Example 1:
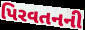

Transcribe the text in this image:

પિરવતનની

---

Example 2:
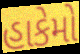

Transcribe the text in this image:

હાકેમો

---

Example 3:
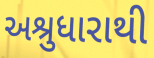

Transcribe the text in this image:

અશ્રુધારાથી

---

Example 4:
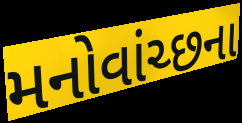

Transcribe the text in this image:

મનોવાંચ્છના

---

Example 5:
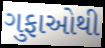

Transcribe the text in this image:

ગુફાઓથી